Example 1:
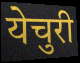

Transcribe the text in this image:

येचुरी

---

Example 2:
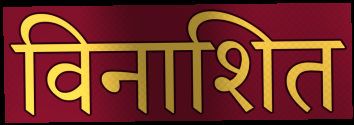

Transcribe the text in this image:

विनाशित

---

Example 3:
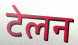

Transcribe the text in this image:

टेलन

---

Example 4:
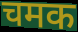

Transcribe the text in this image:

चमक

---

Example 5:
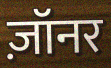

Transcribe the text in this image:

ज़ॉनर